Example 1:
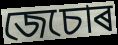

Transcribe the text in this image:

জেচোৰ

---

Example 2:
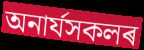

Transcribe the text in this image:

অনাৰ্যসকলৰ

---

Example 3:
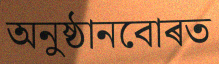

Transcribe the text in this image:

অনুষ্ঠানবোৰত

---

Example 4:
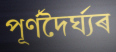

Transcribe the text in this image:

পূৰ্ণদৈৰ্ঘ্যৰ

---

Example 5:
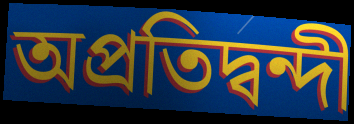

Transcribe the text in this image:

অপ্ৰতিদ্বন্দী